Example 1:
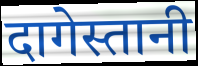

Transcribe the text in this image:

दागेस्तानी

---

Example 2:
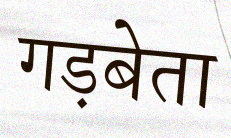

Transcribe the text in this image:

गड़बेता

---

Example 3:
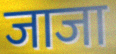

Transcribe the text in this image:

जाजा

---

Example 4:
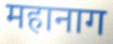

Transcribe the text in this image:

महानाग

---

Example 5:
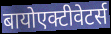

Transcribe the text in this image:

बायोएक्टीवेटर्स